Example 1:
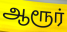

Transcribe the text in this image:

ஆரூர்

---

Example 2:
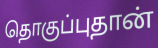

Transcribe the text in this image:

தொகுப்புதான்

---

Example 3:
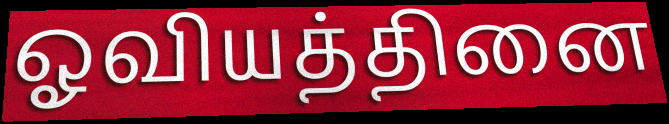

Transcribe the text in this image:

ஓவியத்தினை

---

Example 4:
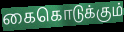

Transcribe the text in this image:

கைகொடுக்கும்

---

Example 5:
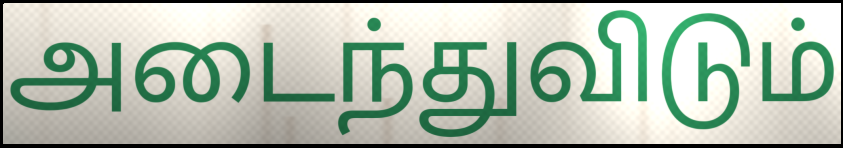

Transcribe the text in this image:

அடைந்துவிடும்